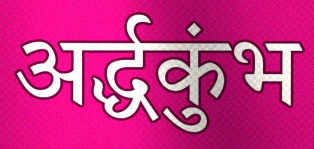
अर्द्धकुंभ